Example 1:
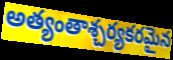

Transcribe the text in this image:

అత్యంతాశ్చర్యకరమైన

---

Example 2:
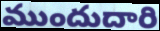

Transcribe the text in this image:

ముందుదారి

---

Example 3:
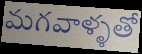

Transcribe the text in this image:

మగవాళ్ళతో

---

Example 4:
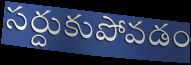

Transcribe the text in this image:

సర్దుకుపోవడం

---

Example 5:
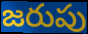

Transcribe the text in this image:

జరుపు